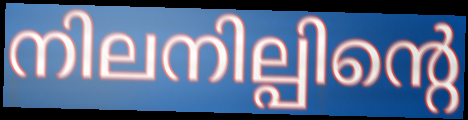
നിലനില്പിന്റെ